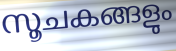
സൂചകങ്ങളും